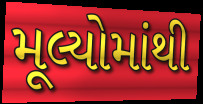
મૂલ્યોમાંથી